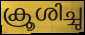
ക്രൂശിച്ചു